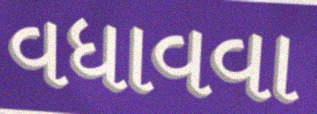
વધાવવા